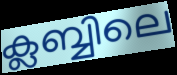
ക്ലബ്ബിലെ